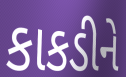
કાકડીને